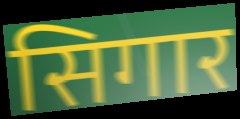
सिगार